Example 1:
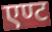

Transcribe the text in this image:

एण्ट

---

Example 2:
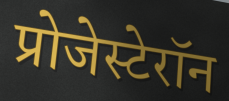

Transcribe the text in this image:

प्रोजेस्टेरॉन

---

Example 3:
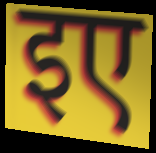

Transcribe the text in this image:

इए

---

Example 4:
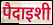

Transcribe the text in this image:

पैदाइशी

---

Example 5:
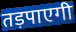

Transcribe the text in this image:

तड़पाएगी